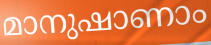
മാനുഷാണാം